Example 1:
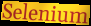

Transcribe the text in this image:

Selenium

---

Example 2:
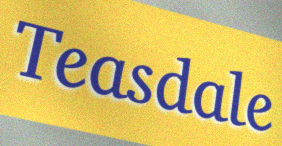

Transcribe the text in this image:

Teasdale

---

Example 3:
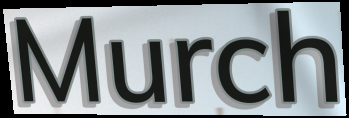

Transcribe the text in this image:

Murch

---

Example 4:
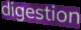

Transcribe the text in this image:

digestion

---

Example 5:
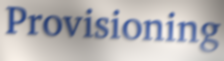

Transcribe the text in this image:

Provisioning